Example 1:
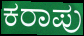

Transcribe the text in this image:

ಕರಾಪು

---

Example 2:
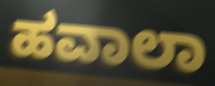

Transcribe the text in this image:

ಹವಾಲಾ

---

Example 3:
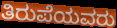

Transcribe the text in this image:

ತಿರುಪೆಯವರು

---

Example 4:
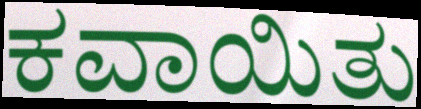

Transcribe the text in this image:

ಕವಾಯಿತು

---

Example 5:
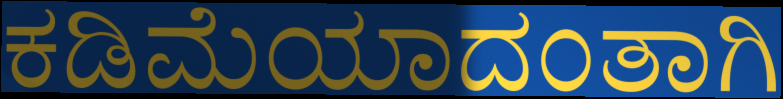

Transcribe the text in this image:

ಕಡಿಮೆಯಾದಂತಾಗಿ